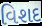
વિશદ